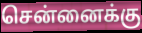
சென்னைக்கு